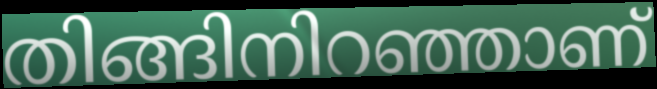
തിങ്ങിനിറഞ്ഞാണ്